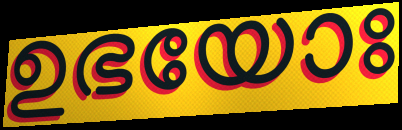
ഉഭയോഃ